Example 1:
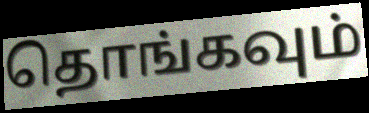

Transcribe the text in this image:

தொங்கவும்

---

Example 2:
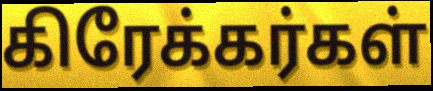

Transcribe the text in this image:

கிரேக்கர்கள்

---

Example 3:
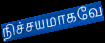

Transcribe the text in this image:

நிச்சயமாகவே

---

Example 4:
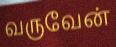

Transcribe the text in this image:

வருவேன்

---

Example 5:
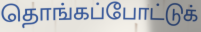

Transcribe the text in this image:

தொங்கப்போட்டுக்